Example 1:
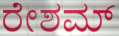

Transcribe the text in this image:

ರೇಶಮ್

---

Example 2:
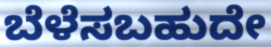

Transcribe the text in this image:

ಬೆಳೆಸಬಹುದೇ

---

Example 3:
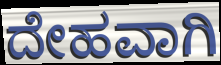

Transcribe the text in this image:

ದೇಹವಾಗಿ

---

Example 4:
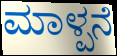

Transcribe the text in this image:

ಮಾಳ್ಪನೆ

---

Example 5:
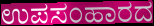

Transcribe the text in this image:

ಉಪಸಂಹಾರದ